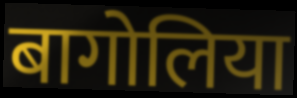
बागोलिया